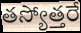
తస్యోత్తరే